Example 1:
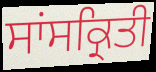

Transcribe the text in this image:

ਸਾਂਸਕ੍ਰਿਤੀ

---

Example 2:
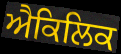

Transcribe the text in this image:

ਐਕਿਲਿਕ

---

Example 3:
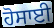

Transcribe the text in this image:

ਹੋਸਾਈ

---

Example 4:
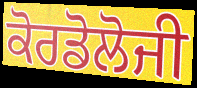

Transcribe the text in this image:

ਕੋਰਡੋਲੋਜੀ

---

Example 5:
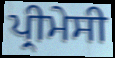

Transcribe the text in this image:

ਪ੍ਰੀਮੇਸੀ